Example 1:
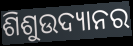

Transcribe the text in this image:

ଶିଶୁଉଦ୍ୟାନର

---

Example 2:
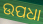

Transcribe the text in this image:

ଉପଧା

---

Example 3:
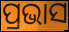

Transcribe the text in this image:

ପ୍ରଭାସ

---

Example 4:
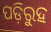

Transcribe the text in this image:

ପଡ଼ିରୁହ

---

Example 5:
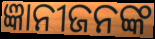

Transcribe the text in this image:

ଜ୍ଞାନୀଜନଙ୍କ